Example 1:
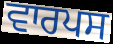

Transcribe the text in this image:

ਵਾਰਪਸ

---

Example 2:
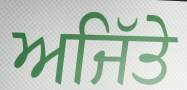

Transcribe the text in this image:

ਅਜਿੱਤੇ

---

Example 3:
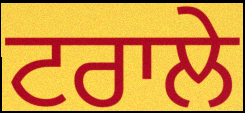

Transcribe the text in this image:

ਟਰਾਲੇ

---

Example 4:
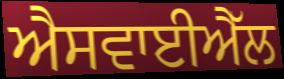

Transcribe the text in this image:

ਐਸਵਾਈਐੱਲ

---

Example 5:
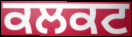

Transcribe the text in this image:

ਕਲਕਟ